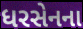
ધરસેનના